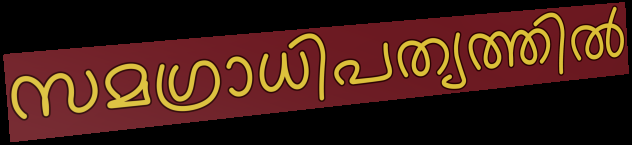
സമഗ്രാധിപത്യത്തിൽ